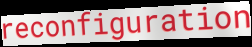
reconfiguration